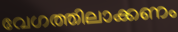
വേഗത്തിലാക്കണം